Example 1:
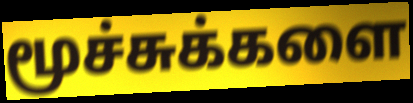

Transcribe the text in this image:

மூச்சுக்களை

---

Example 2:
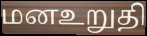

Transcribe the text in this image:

மனஉறுதி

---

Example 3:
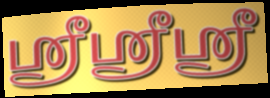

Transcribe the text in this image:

ஸ்ரீஸ்ரீஸ்ரீ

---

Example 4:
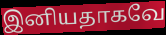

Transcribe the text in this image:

இனியதாகவே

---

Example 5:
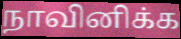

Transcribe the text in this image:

நாவினிக்க